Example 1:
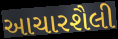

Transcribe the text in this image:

આચારશૈલી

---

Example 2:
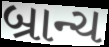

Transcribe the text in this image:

બ્રાન્ચ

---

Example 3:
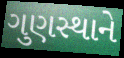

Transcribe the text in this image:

ગુણસ્થાને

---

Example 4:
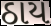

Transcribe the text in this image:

ઠાય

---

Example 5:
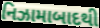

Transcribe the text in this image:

નિઝામાબાદથી